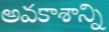
అవకాశాన్ని